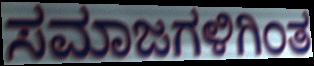
ಸಮಾಜಗಳಿಗಿಂತ